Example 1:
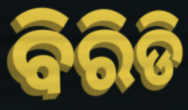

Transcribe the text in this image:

ବିରିଡି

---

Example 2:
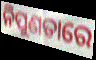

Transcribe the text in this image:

ନିପୁଣତାରେ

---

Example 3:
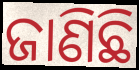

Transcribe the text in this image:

ଜାଣିଛି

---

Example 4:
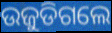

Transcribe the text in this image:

ଉଜୁଡିଗଲେ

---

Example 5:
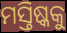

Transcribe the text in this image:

ମସ୍ତିଷ୍କକୁ